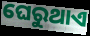
ଘେରୁଥାଏ